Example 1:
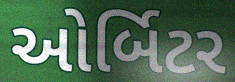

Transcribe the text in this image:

ઓર્બિટર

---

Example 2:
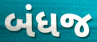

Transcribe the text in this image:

બંધજ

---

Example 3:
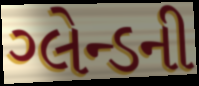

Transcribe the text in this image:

ગ્લેન્ડની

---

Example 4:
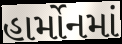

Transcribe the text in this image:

હાર્મોનમાં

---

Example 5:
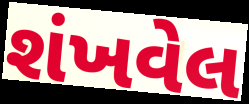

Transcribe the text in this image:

શંખવેલ